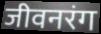
जीवनरंग